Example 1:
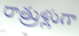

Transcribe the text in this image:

రాత్రుళ్లుగా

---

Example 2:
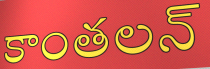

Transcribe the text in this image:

కాంతలన్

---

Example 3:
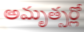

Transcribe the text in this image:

అమృత్సర్లో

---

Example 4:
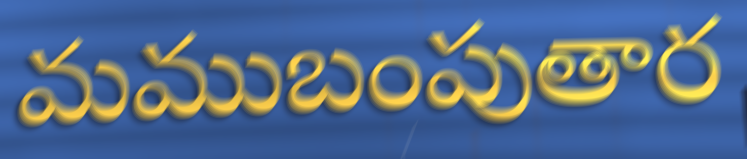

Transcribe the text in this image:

మముబంపుతార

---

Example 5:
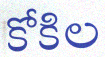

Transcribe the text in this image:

కోకిల